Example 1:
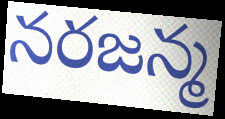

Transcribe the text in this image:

నరజన్మ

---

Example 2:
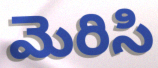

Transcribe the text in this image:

మెరిసి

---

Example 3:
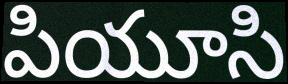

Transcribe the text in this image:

పియూసి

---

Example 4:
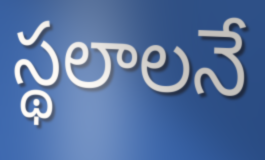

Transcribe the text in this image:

స్థలాలనే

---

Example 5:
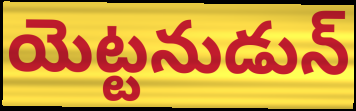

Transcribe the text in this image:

యెట్టనుడున్